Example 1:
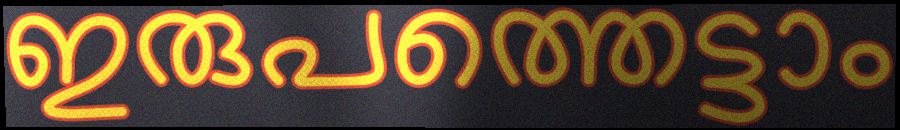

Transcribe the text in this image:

ഇരുപത്തെട്ടാം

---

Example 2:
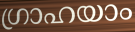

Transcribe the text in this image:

ഗ്രാഹയാം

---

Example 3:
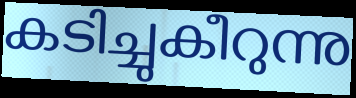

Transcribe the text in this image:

കടിച്ചുകീറുന്നു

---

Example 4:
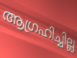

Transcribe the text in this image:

ആഗ്രഹിച്ചില്ല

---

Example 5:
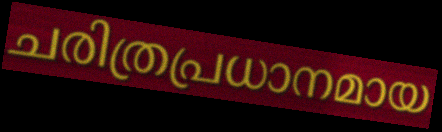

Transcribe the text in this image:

ചരിത്രപ്രധാനമായ